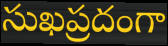
సుఖప్రదంగా